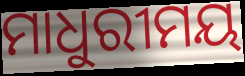
ମାଧୁରୀମୟ